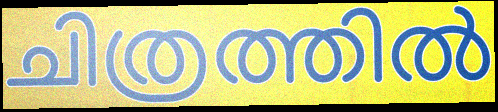
ചിത്രത്തിൽ